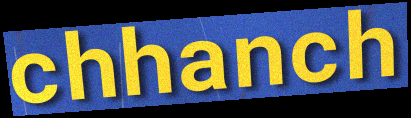
chhanch